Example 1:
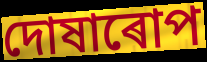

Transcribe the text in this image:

দোষাৰোপ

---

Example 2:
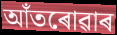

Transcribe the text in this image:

আঁতৰোৱাৰ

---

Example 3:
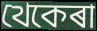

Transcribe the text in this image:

থেকেৰা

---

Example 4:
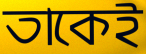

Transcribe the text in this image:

তাকেই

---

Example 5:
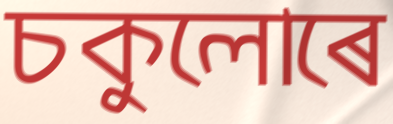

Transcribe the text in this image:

চকুলোৰে